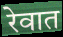
रेवात